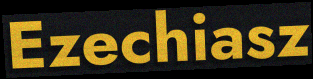
Ezechiasz